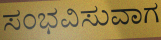
ಸಂಭವಿಸುವಾಗ